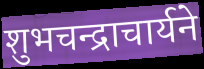
शुभचन्द्राचार्यने